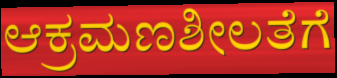
ಆಕ್ರಮಣಶೀಲತೆಗೆ